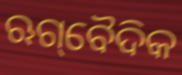
ଋଗ୍‌ବୈଦିକ